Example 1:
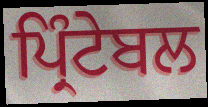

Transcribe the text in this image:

ਪ੍ਰਿੰਟੇਬਲ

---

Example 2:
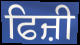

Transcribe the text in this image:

ਫਿਜ਼ੀ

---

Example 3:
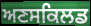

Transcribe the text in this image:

ਅਣਸਕਿਲਡ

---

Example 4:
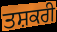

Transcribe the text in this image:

ਤਸ਼ਕਰੀ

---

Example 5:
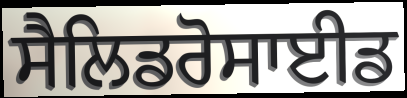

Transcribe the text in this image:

ਸੈਲਿਡਰੋਸਾਈਡ